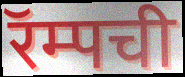
रॅम्पची